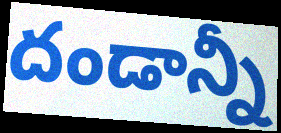
దండాన్నీ